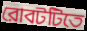
রোবটটিতে